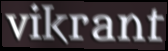
vikrant